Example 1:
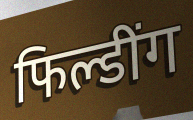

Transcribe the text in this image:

फिल्डींग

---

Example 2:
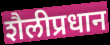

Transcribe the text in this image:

शैलीप्रधान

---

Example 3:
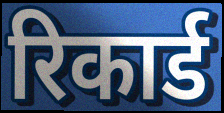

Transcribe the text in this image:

रिकार्ड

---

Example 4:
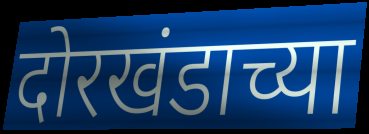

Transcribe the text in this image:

दोरखंडाच्या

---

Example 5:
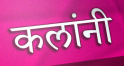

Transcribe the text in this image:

कलांनी